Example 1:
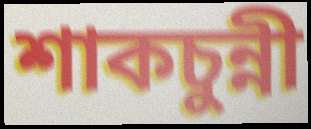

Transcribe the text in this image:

শাকচুন্নী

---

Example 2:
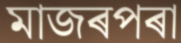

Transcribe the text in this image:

মাজৰপৰা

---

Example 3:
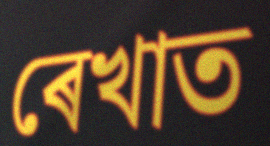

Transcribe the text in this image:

ৰেখাত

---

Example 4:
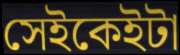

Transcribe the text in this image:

সেইকেইটা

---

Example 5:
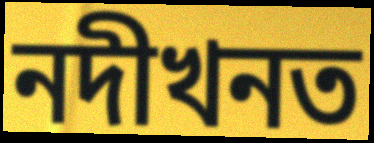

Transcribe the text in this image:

নদীখনত